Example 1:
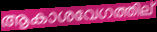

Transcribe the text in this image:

ആകാശവേഗത്തില്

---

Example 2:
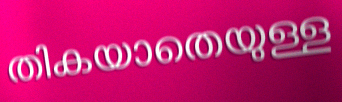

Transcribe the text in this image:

തികയാതെയുള്ള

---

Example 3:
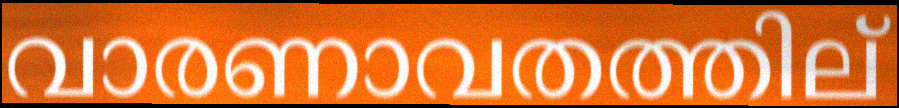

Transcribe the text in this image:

വാരണാവതത്തില്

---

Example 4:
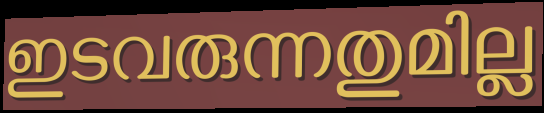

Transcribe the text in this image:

ഇടവരുന്നതുമില്ല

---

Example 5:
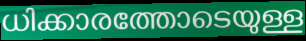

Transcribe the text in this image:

ധിക്കാരത്തോടെയുള്ള